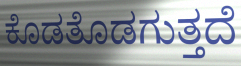
ಕೊಡತೊಡಗುತ್ತದೆ